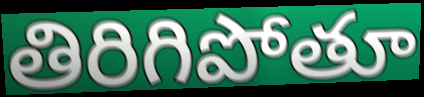
తిరిగిపోతూ